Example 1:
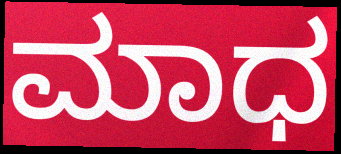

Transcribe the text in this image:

ಮಾಧ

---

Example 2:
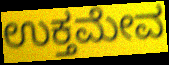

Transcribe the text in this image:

ಉಕ್ತಮೇವ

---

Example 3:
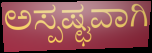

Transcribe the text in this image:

ಅಸ್ಪಷ್ಟವಾಗಿ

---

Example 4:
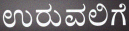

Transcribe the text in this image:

ಉರುವಲಿಗೆ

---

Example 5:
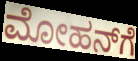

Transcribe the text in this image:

ಮೋಹನ್‌ಗೆ